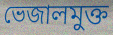
ভেজালমুক্ত